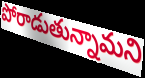
పోరాడుతున్నామని